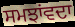
ਸਮਝਾਂਵਦਾ